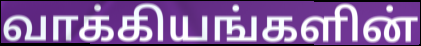
வாக்கியங்களின்